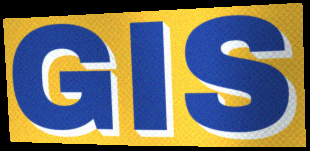
GIS